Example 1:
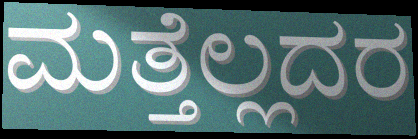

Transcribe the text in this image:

ಮತ್ತೆಲ್ಲದರ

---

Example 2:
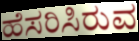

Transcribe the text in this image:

ಹೆಸರಿಸಿರುವ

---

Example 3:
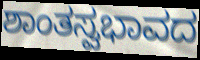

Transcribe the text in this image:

ಶಾಂತಸ್ವಭಾವದ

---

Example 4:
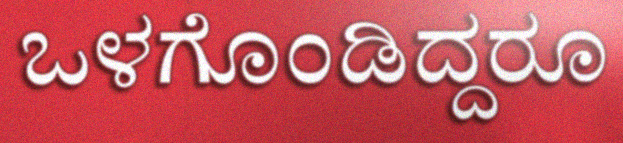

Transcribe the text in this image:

ಒಳಗೊಂಡಿದ್ದರೂ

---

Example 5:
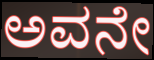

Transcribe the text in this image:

ಅವನೇ